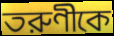
তরুণীকে